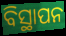
ବିସ୍ଥାପନ